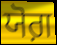
ਯੋਗ਼